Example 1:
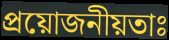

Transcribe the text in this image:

প্ৰয়োজনীয়তাঃ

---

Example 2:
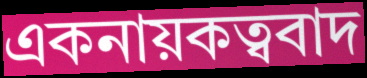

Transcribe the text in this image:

একনায়কত্ববাদ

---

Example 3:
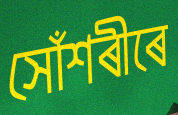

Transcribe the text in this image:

সোঁশৰীৰে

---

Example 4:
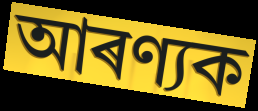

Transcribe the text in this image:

আৰণ্যক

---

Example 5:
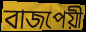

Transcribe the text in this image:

বাজপেয়ী